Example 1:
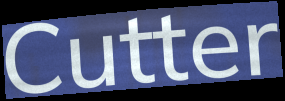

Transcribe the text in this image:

Cutter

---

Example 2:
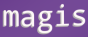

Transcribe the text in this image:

magis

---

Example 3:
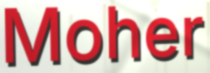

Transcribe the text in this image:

Moher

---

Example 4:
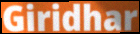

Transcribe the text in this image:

Giridhar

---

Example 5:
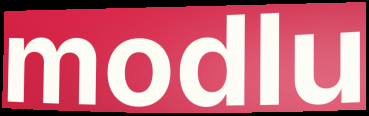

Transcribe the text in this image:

modlu